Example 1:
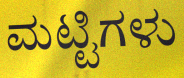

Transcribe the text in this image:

ಮಟ್ಟಿಗಳು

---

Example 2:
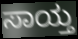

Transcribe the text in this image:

ಸಾಯ್ತ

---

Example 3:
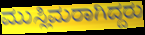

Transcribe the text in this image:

ಮುಸ್ಲಿಮರಾಗಿದ್ದರು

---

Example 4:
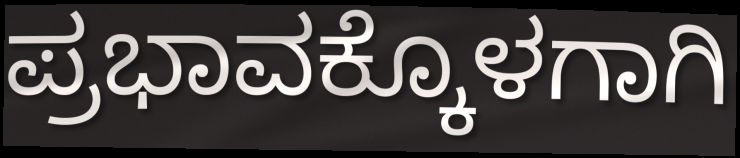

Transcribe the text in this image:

ಪ್ರಭಾವಕ್ಕೊಳಗಾಗಿ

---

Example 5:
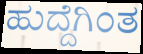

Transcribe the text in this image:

ಹುದ್ದೆಗಿಂತ